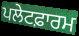
ਪਲੇਟਫ਼ਾਰਮ